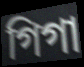
গিগা